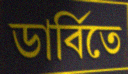
ডার্বিতে